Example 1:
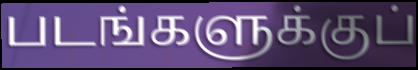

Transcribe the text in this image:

படங்களுக்குப்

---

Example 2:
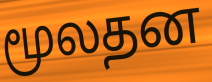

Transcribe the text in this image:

மூலதன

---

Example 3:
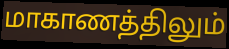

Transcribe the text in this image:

மாகாணத்திலும்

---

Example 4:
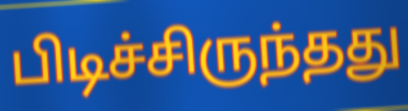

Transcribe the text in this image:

பிடிச்சிருந்தது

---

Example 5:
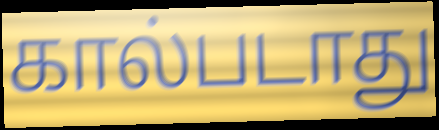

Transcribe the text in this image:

கால்படாது